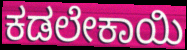
ಕಡಲೇಕಾಯಿ